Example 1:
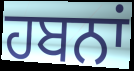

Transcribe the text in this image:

ਹਬਨਾਂ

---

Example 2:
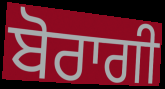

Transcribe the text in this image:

ਬੋਰਾਗੀ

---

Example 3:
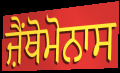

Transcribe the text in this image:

ਜ਼ੈਂਥੋਮੋਨਾਸ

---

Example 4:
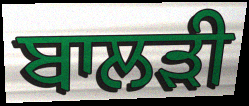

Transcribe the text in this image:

ਬਾਲੜੀ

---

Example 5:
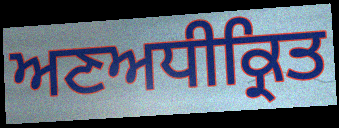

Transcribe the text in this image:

ਅਣਅਧੀਕ੍ਰਿਤ